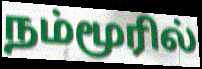
நம்மூரில்